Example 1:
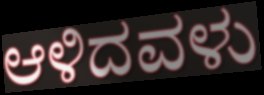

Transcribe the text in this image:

ಆಳಿದವಳು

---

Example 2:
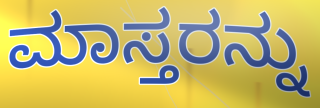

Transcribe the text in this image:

ಮಾಸ್ತರನ್ನು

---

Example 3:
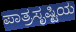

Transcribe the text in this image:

ಪಾತ್ರಸೃಷ್ಟಿಯ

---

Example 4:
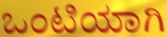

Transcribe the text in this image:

ಒಂಟಿಯಾಗಿ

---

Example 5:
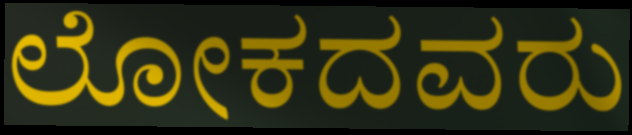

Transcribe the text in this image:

ಲೋಕದವರು